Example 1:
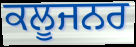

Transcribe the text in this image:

ਕਲੂਜਨਰ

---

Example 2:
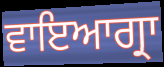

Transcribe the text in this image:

ਵਾਇਆਗ੍ਰਾ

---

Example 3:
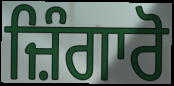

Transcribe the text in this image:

ਜ਼ਿੰਗਾਰੋ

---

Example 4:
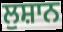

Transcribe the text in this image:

ਲੁਸ਼ਾਨ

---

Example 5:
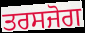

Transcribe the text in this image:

ਤਰਸਜੋਗ